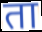
ता